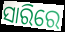
ସାରିରେ